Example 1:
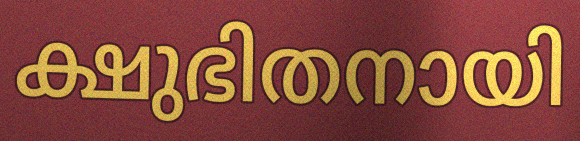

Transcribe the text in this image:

ക്ഷുഭിതനായി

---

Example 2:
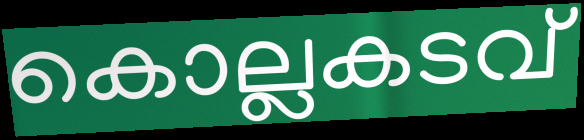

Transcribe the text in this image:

കൊല്ലകടവ്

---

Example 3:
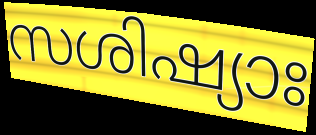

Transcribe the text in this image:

സശിഷ്യാഃ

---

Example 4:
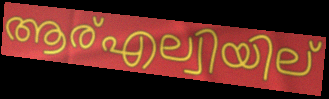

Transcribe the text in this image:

ആര്എല്വിയില്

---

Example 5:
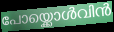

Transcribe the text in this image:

പോയ്ക്കൊൾവിൻ